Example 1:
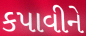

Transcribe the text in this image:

કપાવીને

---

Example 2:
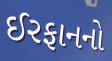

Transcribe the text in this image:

ઈરફાનનો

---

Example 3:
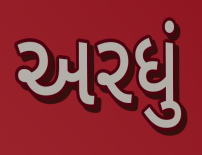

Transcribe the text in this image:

અરધું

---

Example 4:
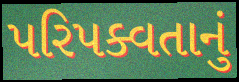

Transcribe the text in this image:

પરિપક્વતાનું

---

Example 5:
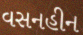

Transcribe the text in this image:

વસનહીન